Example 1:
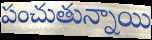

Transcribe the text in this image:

పంచుతున్నాయి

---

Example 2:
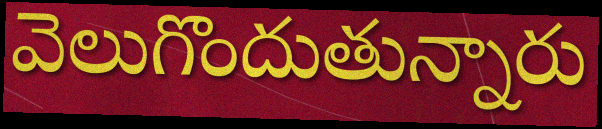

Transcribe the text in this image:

వెలుగొందుతున్నారు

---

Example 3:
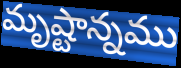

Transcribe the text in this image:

మృష్టాన్నము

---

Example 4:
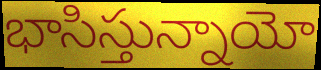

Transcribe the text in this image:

భాసిస్తున్నాయో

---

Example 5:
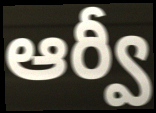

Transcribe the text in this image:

ఆర్వీ